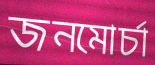
জনমোর্চা